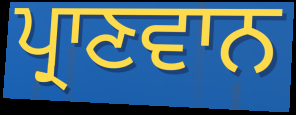
ਪ੍ਰਾਣਵਾਨ